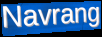
Navrang